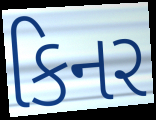
કિનર